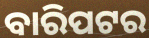
ବାରିପଟର